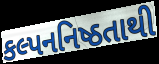
કલ્પનનિષ્ઠતાથી